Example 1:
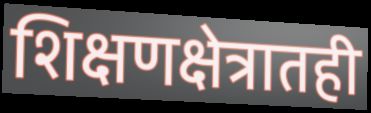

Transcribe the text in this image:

शिक्षणक्षेत्रातही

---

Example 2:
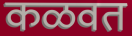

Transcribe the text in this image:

कळवत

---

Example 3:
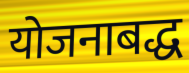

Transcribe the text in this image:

योजनाबद्ध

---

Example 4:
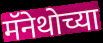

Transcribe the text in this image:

मॅनेथोच्या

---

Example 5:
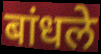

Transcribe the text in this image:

बांधले